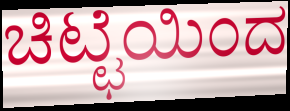
ಚಿಟ್ಟೆಯಿಂದ